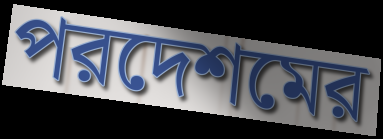
পরদেশমের